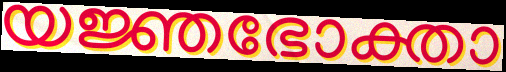
യജ്ഞഭോക്താ